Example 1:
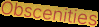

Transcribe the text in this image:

Obscenities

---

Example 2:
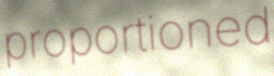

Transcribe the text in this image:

proportioned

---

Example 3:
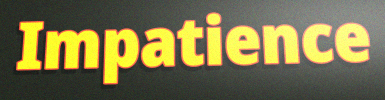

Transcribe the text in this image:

Impatience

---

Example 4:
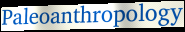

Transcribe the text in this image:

Paleoanthropology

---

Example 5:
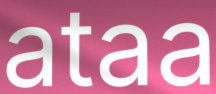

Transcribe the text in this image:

ataa